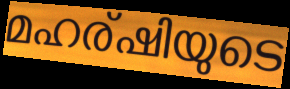
മഹര്ഷിയുടെ